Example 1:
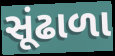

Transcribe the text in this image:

સૂંઢાળા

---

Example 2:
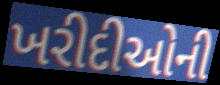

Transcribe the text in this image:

ખરીદીઓની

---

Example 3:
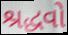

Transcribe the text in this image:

શ્રદ્ધવો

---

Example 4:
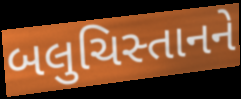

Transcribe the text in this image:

બલુચિસ્તાનને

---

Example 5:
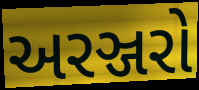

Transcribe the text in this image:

અરઞ્જરો